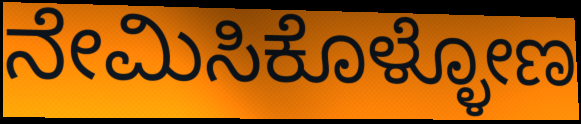
ನೇಮಿಸಿಕೊಳ್ಳೋಣ